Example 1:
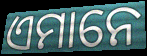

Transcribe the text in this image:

ଏମାନେ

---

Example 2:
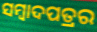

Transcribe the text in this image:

ସମ୍ବାଦପତ୍ରର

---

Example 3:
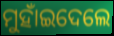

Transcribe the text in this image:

ମୁହାଁଇଦେଲେ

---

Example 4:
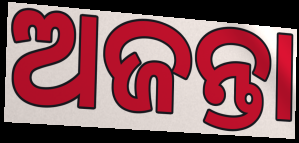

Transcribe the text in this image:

ଅଜନ୍ତା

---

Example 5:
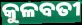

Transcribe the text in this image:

କୁଳବତୀ